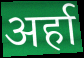
अर्हा